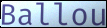
Ballou